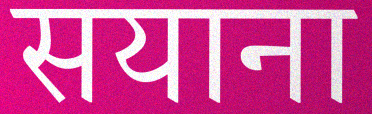
सयाना